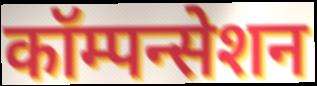
कॉम्पन्सेशन